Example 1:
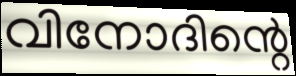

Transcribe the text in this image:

വിനോദിന്റെ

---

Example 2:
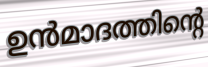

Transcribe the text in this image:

ഉൻമാദത്തിന്റെ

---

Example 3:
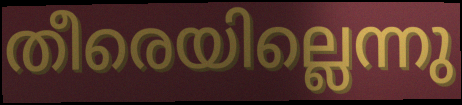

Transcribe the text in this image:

തീരെയില്ലെന്നു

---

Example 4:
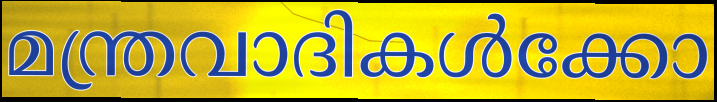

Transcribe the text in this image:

മന്ത്രവാദികൾക്കോ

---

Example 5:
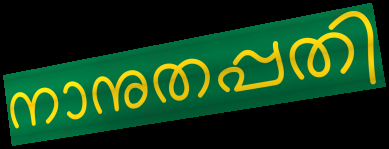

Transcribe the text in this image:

നാനുതപ്പതി